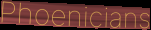
Phoenicians